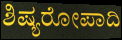
ಶಿಷ್ಯರೋಪಾದಿ